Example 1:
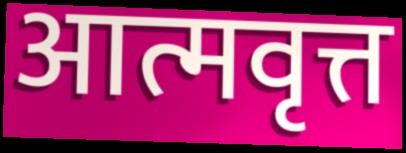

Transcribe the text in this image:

आत्मवृत्त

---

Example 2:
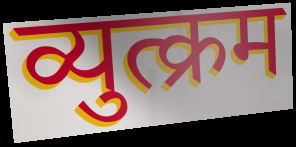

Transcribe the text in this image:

व्युत्क्रम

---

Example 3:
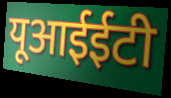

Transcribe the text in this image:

यूआईईटी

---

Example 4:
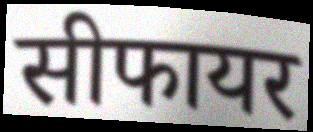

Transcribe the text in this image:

सीफायर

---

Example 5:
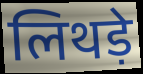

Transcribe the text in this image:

लिथड़े